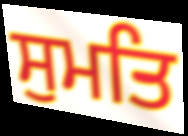
ਸੁਮਤਿ